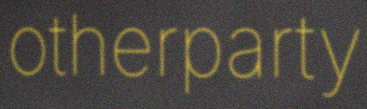
otherparty